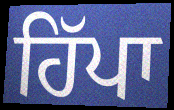
ਹਿੱਪਾ